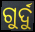
ଗୁର୍ଦୁ